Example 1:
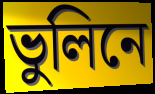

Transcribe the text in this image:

ভুলিনে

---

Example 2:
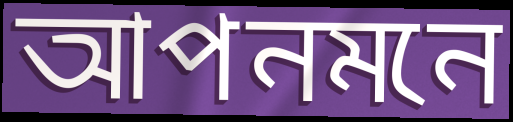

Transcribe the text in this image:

আপনমনে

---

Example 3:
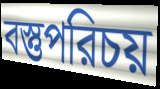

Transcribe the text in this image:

বস্তুপরিচয়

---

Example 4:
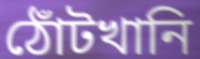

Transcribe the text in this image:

ঠোঁটখানি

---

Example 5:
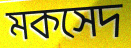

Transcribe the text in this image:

মকসেদ